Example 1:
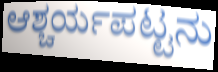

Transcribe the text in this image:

ಆಶ್ಚರ್ಯಪಟ್ಟನು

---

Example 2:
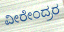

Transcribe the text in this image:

ವೀರೇಂದ್ರರ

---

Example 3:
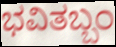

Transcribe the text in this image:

ಭವಿತಬ್ಬಂ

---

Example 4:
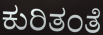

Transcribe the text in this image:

ಕುರಿತಂತೆ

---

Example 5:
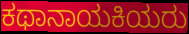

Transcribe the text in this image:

ಕಥಾನಾಯಕಿಯರು